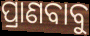
ପ୍ରାଣବାବୁ